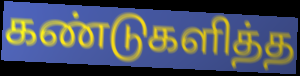
கண்டுகளித்த